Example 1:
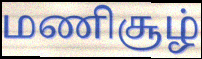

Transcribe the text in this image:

மணிசூழ்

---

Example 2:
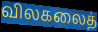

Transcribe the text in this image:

விலகலைத்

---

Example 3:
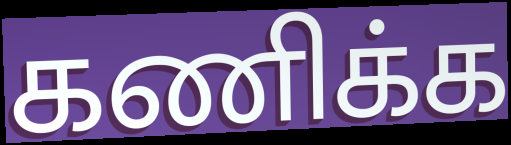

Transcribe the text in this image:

கணிக்க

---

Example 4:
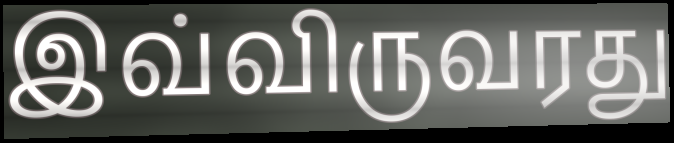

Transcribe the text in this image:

இவ்விருவரது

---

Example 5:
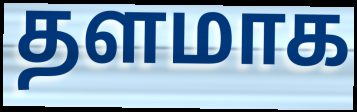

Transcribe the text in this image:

தளமாக